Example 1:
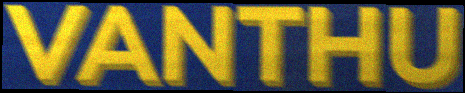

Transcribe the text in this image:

VANTHU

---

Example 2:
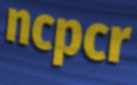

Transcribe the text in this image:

ncpcr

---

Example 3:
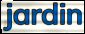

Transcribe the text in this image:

jardin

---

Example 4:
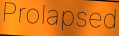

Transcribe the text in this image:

Prolapsed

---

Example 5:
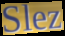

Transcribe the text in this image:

Slez